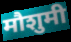
मौशुमी